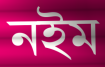
নইম